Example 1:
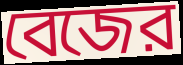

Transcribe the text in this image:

বেজের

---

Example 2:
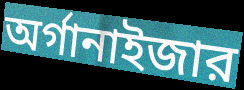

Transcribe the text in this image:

অর্গানাইজার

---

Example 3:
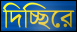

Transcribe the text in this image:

দিচ্ছিরে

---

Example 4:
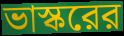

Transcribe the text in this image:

ভাস্করের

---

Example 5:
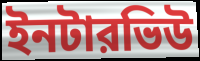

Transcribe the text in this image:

ইনটারভিউ